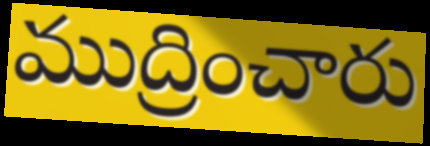
ముద్రించారు